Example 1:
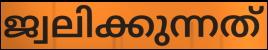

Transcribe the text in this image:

ജ്വലിക്കുന്നത്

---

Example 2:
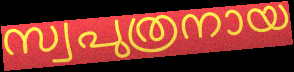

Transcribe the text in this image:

സ്വപുത്രനായ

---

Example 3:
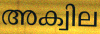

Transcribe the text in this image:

അക്വില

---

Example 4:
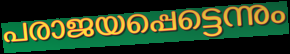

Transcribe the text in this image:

പരാജയപ്പെട്ടെന്നും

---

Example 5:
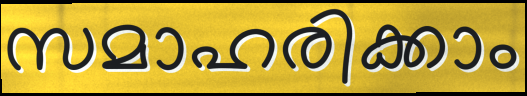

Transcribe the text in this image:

സമാഹരിക്കാം